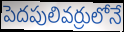
పెదపులివర్రులోనే